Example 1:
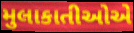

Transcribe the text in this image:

મુલાકાતીઓએ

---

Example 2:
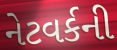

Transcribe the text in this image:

નેટવર્કની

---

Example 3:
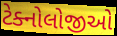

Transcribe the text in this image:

ટેક્નોલોજીઓ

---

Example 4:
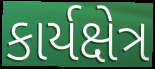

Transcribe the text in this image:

કાર્યક્ષેત્ર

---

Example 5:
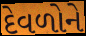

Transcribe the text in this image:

દેવળોને